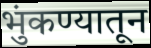
भुंकण्यातून